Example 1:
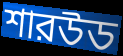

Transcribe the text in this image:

শারউড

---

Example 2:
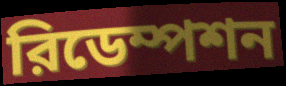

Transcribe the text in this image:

রিডেম্পশন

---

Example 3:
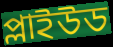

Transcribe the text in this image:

প্লাইউড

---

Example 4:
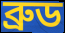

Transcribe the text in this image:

ব্রুড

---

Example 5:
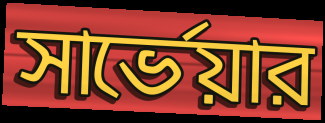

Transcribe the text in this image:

সার্ভেয়ার